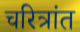
चरित्रांत